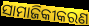
ସାମାଜିକୀକରଣ